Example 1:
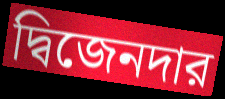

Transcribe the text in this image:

দ্বিজেনদার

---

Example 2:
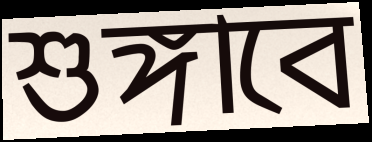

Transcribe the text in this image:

শুঙ্গাবে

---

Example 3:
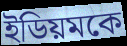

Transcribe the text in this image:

ইডিয়মকে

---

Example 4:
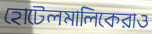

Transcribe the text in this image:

হোটেলমালিকেরাও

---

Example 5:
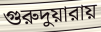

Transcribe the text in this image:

গুরুদুয়ারায়